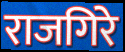
राजगिरे